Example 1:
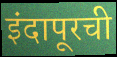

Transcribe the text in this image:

इंदापूरची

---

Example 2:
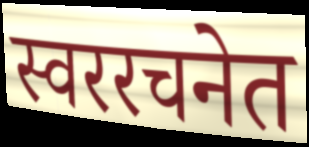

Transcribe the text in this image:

स्वररचनेत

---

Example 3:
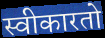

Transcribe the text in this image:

स्वीकारतो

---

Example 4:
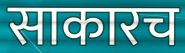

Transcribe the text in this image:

साकारच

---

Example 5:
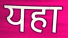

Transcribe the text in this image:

यहा